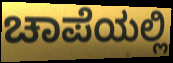
ಚಾಪೆಯಲ್ಲಿ